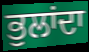
ਭੁਲਾਂਦਾ